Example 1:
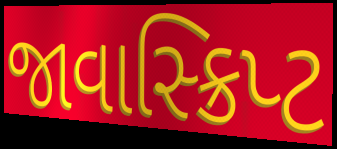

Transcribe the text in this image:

જાવાસ્ક્રિપ્ટ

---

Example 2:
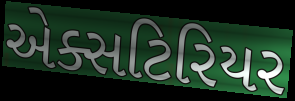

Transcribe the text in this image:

એક્સટિરિયર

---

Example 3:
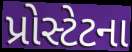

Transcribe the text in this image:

પ્રોસ્ટેટના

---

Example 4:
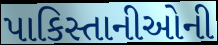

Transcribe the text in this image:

પાકિસ્તાનીઓની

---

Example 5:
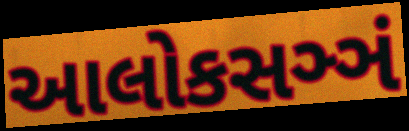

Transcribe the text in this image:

આલોકસઞ્ઞં